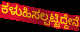
ಕಳುಹಿಸಲ್ಪಟ್ಟಿದ್ದೇನೆ